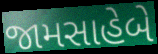
જામસાહેબે